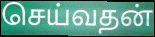
செய்வதன்